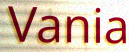
Vania